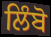
ਲਿੰਬੋ